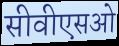
सीवीएसओ